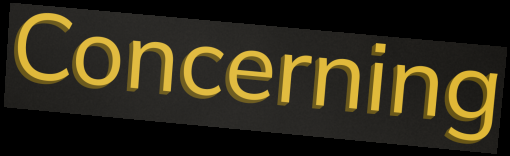
Concerning